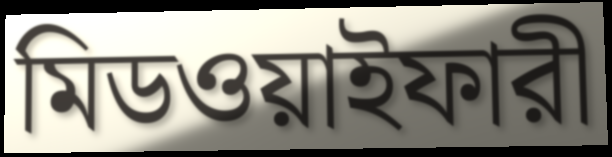
মিডওয়াইফারী